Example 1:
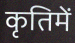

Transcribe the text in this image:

कृतिमें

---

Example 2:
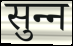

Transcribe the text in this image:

सुन्‍न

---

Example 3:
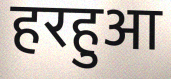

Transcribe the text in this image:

हरहुआ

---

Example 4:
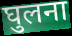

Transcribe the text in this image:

घुलना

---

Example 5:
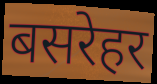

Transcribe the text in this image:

बसरेहर